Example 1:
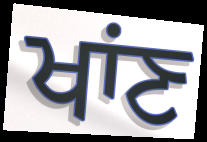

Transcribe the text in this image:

ਖਾਂਣ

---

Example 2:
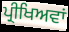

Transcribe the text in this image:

ਪ੍ਰੀਖਿਅਵਾਂ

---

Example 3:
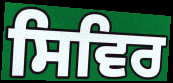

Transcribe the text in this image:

ਸਿਵਿਰ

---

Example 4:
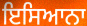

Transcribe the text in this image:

ਇਸਿਆਨਾ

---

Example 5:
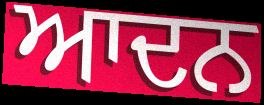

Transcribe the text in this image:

ਆਦਨ